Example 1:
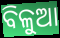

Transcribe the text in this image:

ବିଳୁଆ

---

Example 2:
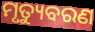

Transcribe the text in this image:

ମୃତ୍ୟୁବରଣ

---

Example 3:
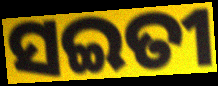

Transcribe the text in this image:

ସଇତୀ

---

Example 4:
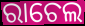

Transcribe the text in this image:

ରାଚେଲ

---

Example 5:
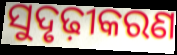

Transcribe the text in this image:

ସୁଦୃଢ଼ୀକରଣ